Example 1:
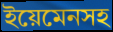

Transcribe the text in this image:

ইয়েমেনসহ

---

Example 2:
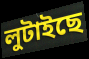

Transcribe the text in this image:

লুটাইছে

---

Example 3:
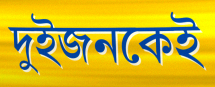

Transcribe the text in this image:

দুইজনকেই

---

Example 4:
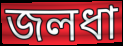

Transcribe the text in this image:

জলধা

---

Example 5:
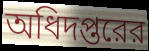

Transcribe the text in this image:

অধিদপ্তরের